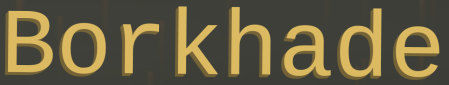
Borkhade